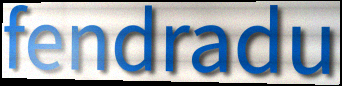
fendradu